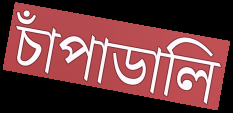
চাঁপাডালি